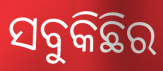
ସବୁକିଛିର